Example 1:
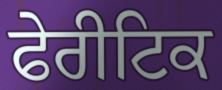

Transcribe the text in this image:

ਫੇਰੀਟਿਕ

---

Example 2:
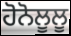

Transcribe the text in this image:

ਹੋਨੋਲੂਲੂ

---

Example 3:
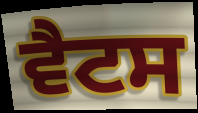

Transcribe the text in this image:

ਵੈਟਸ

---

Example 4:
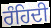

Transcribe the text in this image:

ਰੰਹਿਦੀ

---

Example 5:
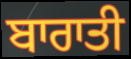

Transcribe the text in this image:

ਬਾਰਾਤੀ